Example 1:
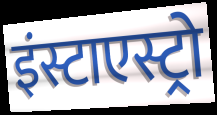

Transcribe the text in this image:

इंस्टाएस्ट्रो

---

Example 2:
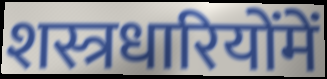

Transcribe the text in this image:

शस्त्रधारियोंमें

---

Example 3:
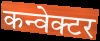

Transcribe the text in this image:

कन्वेक्टर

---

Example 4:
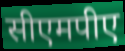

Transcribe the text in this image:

सीएमपीए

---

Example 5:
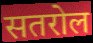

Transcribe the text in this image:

सतरोल